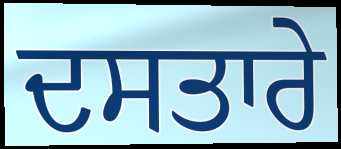
ਦਸਤਾਰੇ